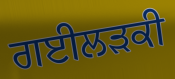
ਗਈਲੜਕੀ